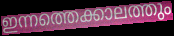
ഇന്നത്തെക്കാലത്തും